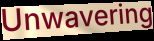
Unwavering